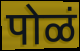
पोळं